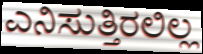
ಎನಿಸುತ್ತಿರಲಿಲ್ಲ